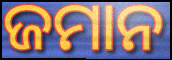
ଜମାନ